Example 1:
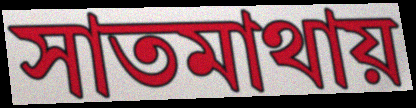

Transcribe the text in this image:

সাতমাথায়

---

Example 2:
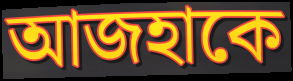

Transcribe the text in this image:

আজহাকে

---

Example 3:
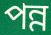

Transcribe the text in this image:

পন্ন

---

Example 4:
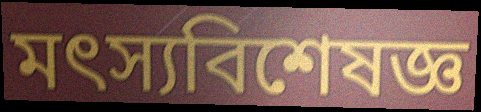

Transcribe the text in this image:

মৎস্যবিশেষজ্ঞ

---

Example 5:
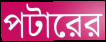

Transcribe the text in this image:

পটারের